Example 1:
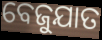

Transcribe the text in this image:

ବେଜୁଯାତ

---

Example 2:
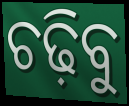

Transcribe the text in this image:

ଚଢ଼ିବୁ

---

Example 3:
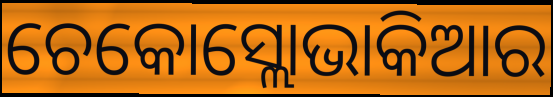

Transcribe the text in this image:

ଚେକୋସ୍ଲୋଭାକିଆର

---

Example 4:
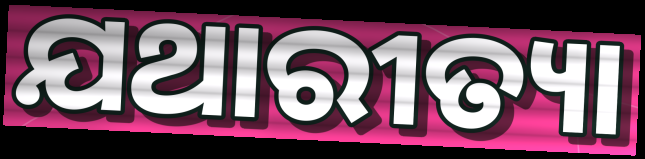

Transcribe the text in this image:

ଯଥାରୀତ୍ୟା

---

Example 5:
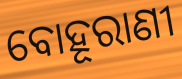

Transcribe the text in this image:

ବୋହୂରାଣୀ